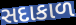
સદાકાળ